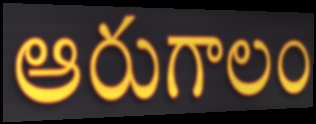
ఆరుగాలం